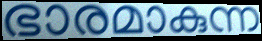
ഭാരമാകുന്ന